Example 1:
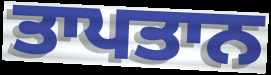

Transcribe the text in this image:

ਤਾਪਤਾਨ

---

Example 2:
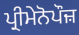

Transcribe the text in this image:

ਪ੍ਰੀਮੇਨੋਪੌਜ਼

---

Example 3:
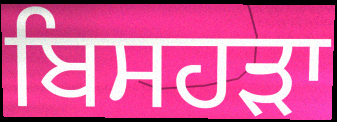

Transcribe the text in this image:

ਬਿਸਹੜਾ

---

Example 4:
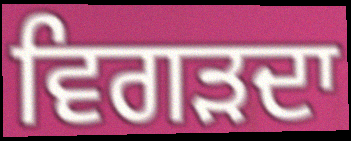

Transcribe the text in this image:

ਵਿਗੜਦਾ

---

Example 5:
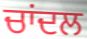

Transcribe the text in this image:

ਚਾਂਦਲ